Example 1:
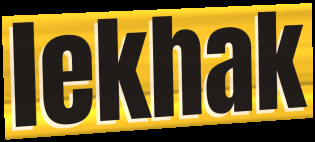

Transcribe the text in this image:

lekhak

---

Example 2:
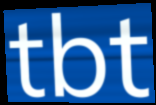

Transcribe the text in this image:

tbt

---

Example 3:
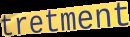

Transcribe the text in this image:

tretment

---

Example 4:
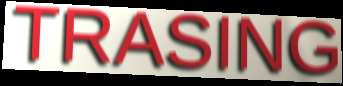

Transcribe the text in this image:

TRASING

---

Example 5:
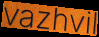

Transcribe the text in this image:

vazhvil